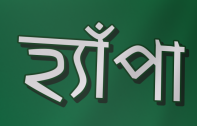
হ্যাঁপা